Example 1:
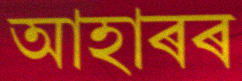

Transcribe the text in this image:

আহাৰৰ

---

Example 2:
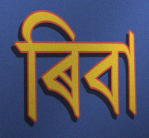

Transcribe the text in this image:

ৰিবা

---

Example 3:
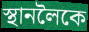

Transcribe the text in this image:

স্থানলৈকে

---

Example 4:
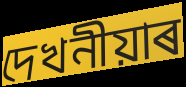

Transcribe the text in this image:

দেখনীয়াৰ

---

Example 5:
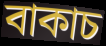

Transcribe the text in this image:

বাকাচ